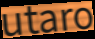
utaro